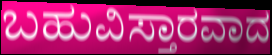
ಬಹುವಿಸ್ತಾರವಾದ